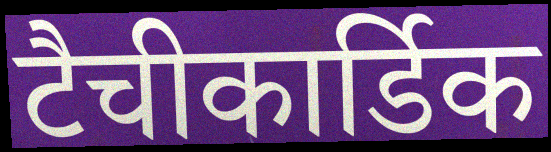
टैचीकार्डिक